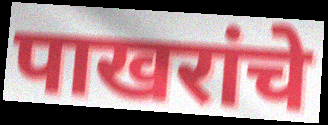
पाखरांचे